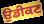
ਉਡੀਕਣ